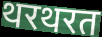
थरथरत